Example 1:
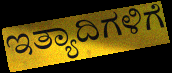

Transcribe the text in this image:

ಇತ್ಯಾದಿಗಳಿಗೆ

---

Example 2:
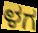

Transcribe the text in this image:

ಳಗ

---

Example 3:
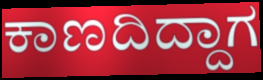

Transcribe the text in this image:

ಕಾಣದಿದ್ದಾಗ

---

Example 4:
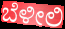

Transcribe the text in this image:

ಬೆಳೀಲಿ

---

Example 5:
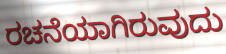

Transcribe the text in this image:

ರಚನೆಯಾಗಿರುವುದು